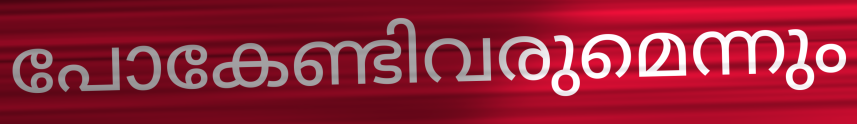
പോകേണ്ടിവരുമെന്നും